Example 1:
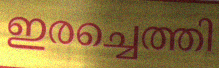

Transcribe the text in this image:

ഇരച്ചെത്തി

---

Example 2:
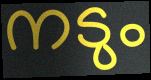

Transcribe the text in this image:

നടും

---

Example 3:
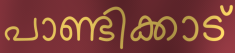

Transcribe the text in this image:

പാണ്ടിക്കാട്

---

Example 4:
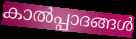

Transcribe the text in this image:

കാൽപ്പാദങ്ങൾ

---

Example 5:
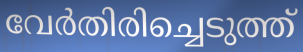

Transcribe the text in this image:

വേർതിരിച്ചെടുത്ത്